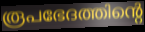
രൂപഭേദത്തിന്റെ